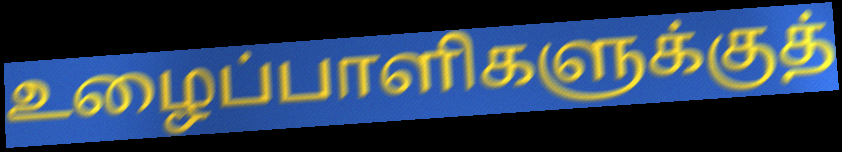
உழைப்பாளிகளுக்குத்